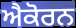
ਐਕੋਰਨ